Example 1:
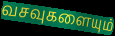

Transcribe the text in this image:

வசவுகளையும்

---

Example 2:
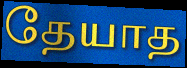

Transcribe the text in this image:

தேயாத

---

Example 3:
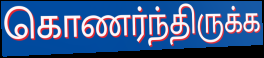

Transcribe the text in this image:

கொணர்ந்திருக்க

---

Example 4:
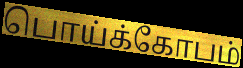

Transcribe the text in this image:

பொய்க்கோபம்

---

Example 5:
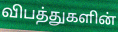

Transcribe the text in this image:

விபத்துகளின்